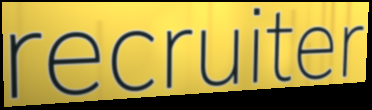
recruiter